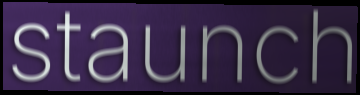
staunch